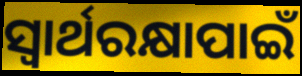
ସ୍ୱାର୍ଥରକ୍ଷାପାଇଁ